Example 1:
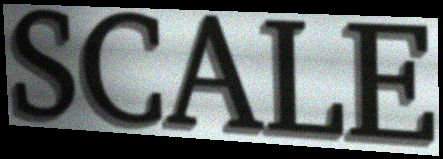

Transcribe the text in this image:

SCALE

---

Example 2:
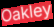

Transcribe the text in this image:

Oakley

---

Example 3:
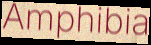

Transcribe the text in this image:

Amphibia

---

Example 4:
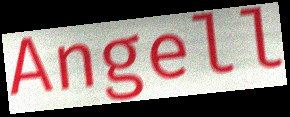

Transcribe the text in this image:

Angell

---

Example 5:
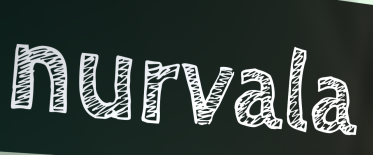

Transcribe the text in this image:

nurvala